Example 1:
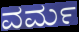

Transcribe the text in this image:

ವರ್ಮ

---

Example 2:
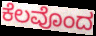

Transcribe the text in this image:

ಕೆಲವೊಂದ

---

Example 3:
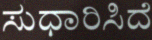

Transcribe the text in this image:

ಸುಧಾರಿಸಿದೆ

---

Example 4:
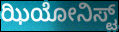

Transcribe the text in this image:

ಝಿಯೋನಿಸ್ಟ್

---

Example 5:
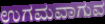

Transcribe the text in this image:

ಉಗಮವಾಗುವ